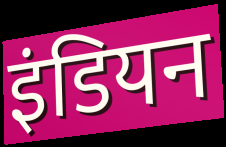
इंडियन